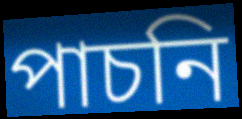
পাচনি